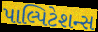
પાલ્પિટેશન્સ